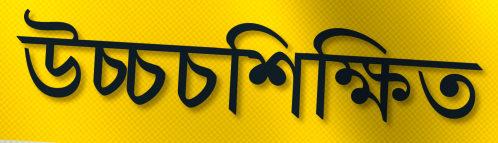
উচ্চচশিক্ষিত